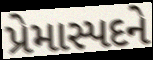
પ્રેમાસ્પદને